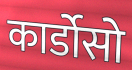
कार्डोसो